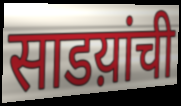
साडय़ांची